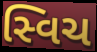
સ્વિચ